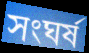
সংঘর্ষ